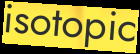
isotopic